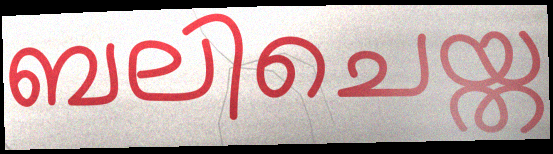
ബലിചെയ്ത